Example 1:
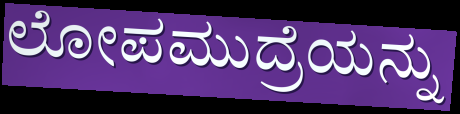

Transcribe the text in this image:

ಲೋಪಮುದ್ರೆಯನ್ನು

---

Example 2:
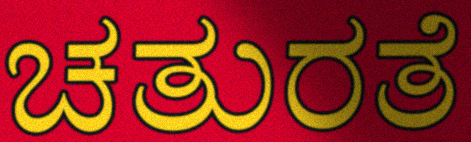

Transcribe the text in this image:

ಚತುರತೆ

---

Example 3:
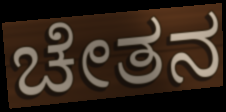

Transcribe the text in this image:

ಚೇತನ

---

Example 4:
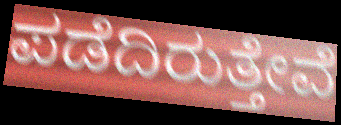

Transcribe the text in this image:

ಪಡೆದಿರುತ್ತೇವೆ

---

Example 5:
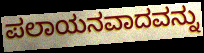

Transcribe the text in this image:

ಪಲಾಯನವಾದವನ್ನು